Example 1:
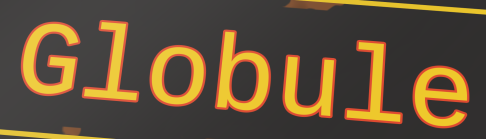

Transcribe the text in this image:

Globule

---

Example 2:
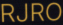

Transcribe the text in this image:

RJRO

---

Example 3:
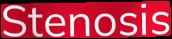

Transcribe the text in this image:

Stenosis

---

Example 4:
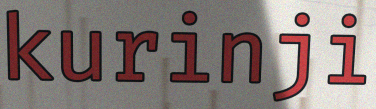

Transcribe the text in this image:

kurinji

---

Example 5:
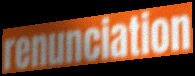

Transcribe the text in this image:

renunciation